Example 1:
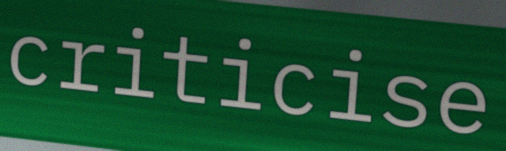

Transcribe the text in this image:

criticise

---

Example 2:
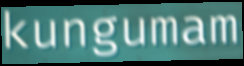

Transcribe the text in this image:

kungumam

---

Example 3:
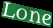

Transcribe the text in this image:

Lone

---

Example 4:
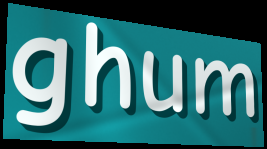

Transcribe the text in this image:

ghum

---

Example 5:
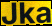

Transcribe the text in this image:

Jka